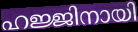
ഹജ്ജിനായി